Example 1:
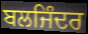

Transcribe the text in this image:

ਬਲਜਿੰਦਰ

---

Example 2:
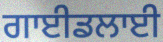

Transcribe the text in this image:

ਗਾਈਡਲਾਈ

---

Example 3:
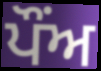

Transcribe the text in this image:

ਪੌਂਅ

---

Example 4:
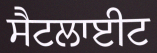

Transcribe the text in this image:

ਸੈਟਲਾਈਟ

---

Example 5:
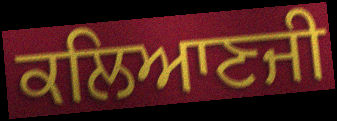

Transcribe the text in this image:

ਕਲਿਆਣਜੀ